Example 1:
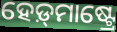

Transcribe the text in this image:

ହେଡ଼୍‌ମାଷ୍ଟ୍ରେ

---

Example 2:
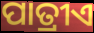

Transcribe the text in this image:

ପାତ୍ରୀଏ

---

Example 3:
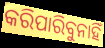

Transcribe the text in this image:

କରିପାରିବୁନାହିଁ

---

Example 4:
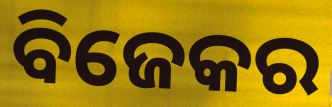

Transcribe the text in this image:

ବିଜେକର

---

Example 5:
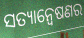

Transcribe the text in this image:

ସତ୍ୟାନ୍ୱେଷଣର